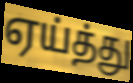
ஏய்த்து